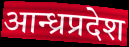
आन्ध्रप्रदेश